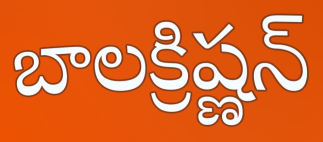
బాలక్రిష్ణన్